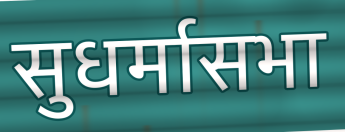
सुधर्मासभा